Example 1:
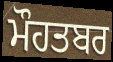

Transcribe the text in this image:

ਮੌਹਤਬਰ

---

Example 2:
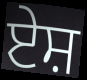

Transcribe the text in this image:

ਏਸ਼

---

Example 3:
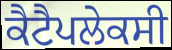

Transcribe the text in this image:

ਕੈਟੈਪਲੇਕਸੀ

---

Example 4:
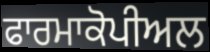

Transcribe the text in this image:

ਫਾਰਮਾਕੋਪੀਅਲ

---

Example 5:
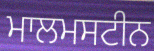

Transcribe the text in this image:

ਮਾਲਮਸਟੀਨ